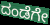
ದಂಡೆಗೇ